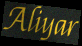
Aliyar